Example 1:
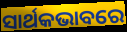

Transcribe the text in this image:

ସାର୍ଥକଭାବରେ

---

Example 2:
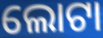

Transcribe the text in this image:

ଲୋଟା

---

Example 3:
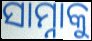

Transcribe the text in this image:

ସାମ୍ନାକୁ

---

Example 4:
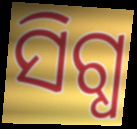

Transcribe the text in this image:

ସିଗ୍ଧ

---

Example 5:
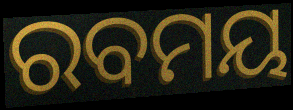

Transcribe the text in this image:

ରବମୟ